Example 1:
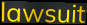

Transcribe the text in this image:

lawsuit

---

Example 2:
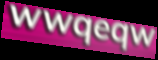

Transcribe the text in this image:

wwqeqw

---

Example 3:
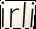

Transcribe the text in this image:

irli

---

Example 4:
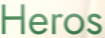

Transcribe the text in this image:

Heros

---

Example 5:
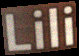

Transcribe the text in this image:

Lili